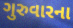
ગુરુવારના